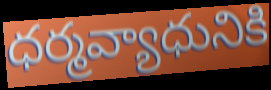
ధర్మవ్యాధునికి